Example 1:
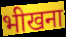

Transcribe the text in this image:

भीखना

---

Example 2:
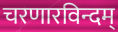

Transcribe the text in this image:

चरणारविन्दम्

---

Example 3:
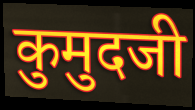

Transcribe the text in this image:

कुमुदजी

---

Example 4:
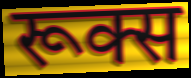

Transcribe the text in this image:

रूक्स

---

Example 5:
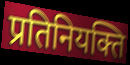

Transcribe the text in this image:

प्रतिनियक्ति